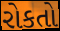
રોકતો